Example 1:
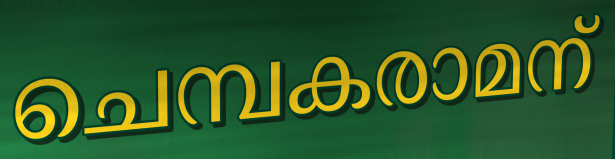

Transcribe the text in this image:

ചെമ്പകരാമന്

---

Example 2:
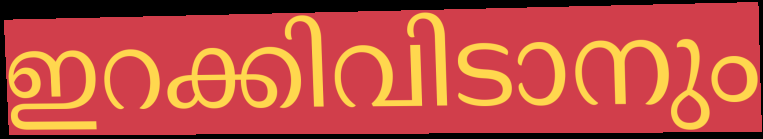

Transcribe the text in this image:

ഇറക്കിവിടാനും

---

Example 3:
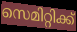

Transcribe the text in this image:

സെമിറ്റിക്ക്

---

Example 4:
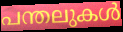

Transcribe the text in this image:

പന്തലുകൾ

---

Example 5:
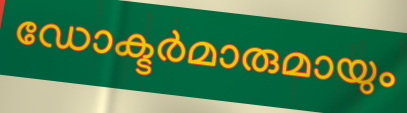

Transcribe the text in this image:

ഡോക്ടർമാരുമായും